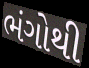
ભંગોથી